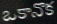
ఒకానొక